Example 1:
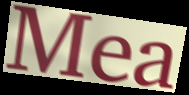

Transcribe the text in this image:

Mea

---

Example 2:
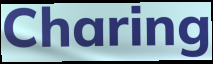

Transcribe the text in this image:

Charing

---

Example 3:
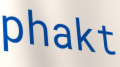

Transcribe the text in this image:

phakt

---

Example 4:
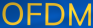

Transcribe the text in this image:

OFDM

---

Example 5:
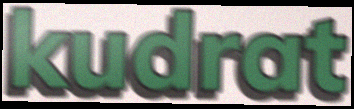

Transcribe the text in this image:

kudrat